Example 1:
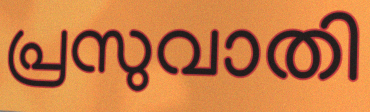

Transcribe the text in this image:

പ്രസുവാതി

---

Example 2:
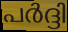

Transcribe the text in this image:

പർദ്ദി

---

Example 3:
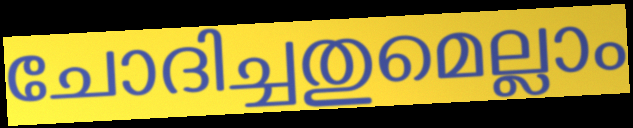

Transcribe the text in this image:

ചോദിച്ചതുമെല്ലാം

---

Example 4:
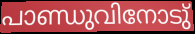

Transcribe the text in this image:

പാണ്ഡുവിനോടു്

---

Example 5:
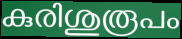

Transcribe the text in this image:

കുരിശുരൂപം